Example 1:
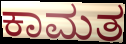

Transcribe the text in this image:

ಕಾಮತ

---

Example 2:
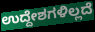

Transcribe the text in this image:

ಉದ್ದೇಶಗಳಿಲ್ಲದೆ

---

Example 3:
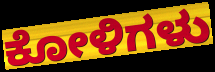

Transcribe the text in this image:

ಕೋಳಿಗಳು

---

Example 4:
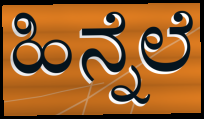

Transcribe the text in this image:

ಹಿನ್ನೆಲೆ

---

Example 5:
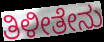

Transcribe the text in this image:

ತಿಳೀತೇನು